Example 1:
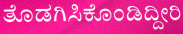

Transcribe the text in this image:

ತೊಡಗಿಸಿಕೊಂಡಿದ್ದೀರಿ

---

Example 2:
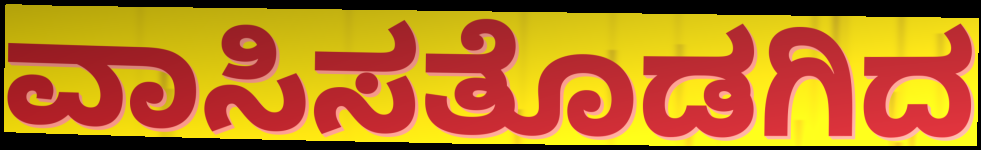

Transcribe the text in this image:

ವಾಸಿಸತೊಡಗಿದ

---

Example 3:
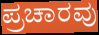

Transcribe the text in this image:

ಪ್ರಚಾರವು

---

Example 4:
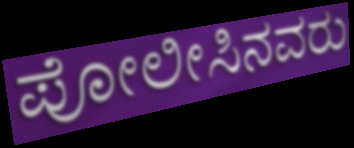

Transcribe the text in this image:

ಪೋಲೀಸಿನವರು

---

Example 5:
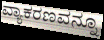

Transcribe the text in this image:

ವ್ಯಾಕರಣವನ್ನೂ